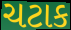
ચટાક